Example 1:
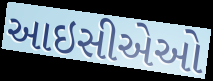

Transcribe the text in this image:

આઇસીએઓ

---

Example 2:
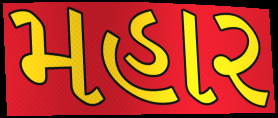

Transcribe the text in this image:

મહાર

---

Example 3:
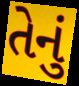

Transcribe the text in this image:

તેનું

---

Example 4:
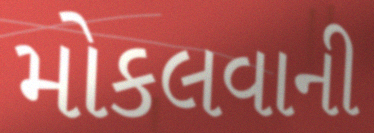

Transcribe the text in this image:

મોકલવાની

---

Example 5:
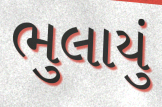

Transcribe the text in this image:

ભુલાયું